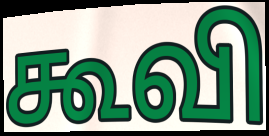
கூவி